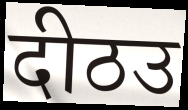
दीठउ